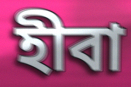
হীবা